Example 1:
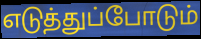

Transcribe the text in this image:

எடுத்துப்போடும்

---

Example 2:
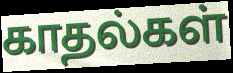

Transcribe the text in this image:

காதல்கள்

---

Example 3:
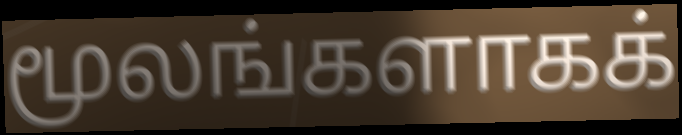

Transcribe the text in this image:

மூலங்களாகக்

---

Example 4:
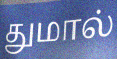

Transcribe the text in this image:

துமால்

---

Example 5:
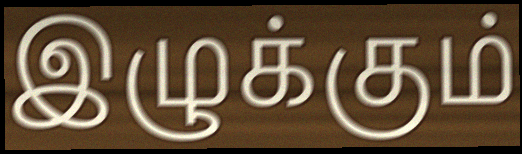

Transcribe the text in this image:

இழுக்கும்